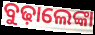
ବୁଢ଼ାଲେଙ୍କା